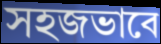
সহজভাবে